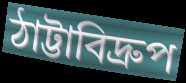
ঠাট্টাবিদ্রুপ